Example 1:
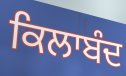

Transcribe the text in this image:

ਕਿਲਾਬੰਦ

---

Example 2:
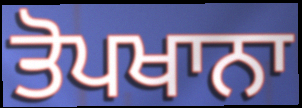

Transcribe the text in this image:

ਤੋਪਖਾਨਾ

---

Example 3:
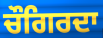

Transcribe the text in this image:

ਚੌਗਿਰਦਾ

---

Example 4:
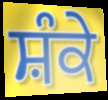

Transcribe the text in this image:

ਸ਼ੰਕੇ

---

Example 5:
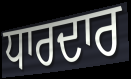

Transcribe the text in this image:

ਧਾਰਦਾਰ